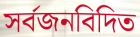
সর্বজনবিদিত